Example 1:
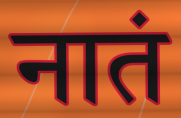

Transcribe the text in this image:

नातं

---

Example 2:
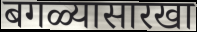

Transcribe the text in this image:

बगळ्यासारखा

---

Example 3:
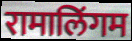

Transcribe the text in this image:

रामालिंगम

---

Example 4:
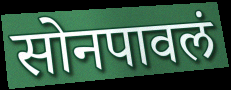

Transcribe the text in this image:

सोनपावलं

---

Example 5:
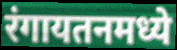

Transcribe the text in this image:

रंगायतनमध्ये